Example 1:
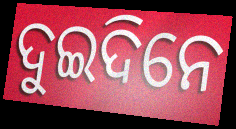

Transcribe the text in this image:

ଦୁଇଦିନେ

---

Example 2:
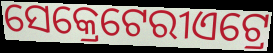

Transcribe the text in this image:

ସେକ୍ରେଟେରୀଏଟ୍ରେ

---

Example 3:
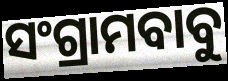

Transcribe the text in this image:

ସଂଗ୍ରାମବାବୁ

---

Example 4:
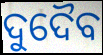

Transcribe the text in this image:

ଦୁଦୈବ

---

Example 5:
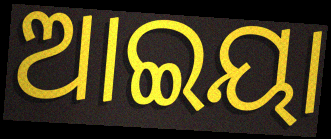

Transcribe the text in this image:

ଆଇୟା